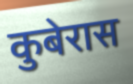
कुबेरास